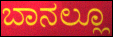
ಬಾನಲ್ಲೂ